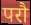
परौ